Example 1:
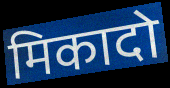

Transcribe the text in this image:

मिकादो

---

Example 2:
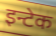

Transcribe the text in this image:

इन्टेक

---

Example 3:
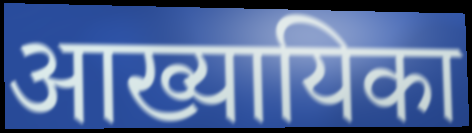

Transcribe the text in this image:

आख्यायिका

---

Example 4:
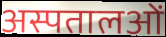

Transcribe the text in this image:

अस्पतालओं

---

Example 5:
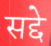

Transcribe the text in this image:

सद्दे